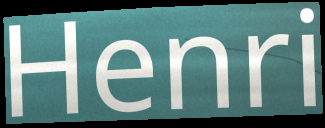
Henri